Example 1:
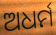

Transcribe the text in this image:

ଅଧର୍ମ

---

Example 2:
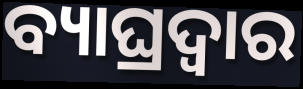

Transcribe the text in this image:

ବ୍ୟାଘ୍ରଦ୍ଵାର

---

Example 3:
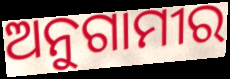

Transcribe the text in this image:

ଅନୁଗାମୀର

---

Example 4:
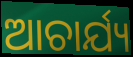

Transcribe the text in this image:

ଆଚାର୍ଯ୍ୟ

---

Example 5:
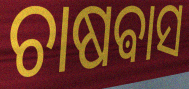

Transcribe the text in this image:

ଚାଷଵାସ